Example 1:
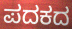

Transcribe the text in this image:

ಪದಕದ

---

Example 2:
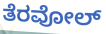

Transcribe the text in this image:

ತೆರವೋಲ್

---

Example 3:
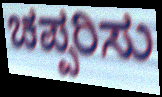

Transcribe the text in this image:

ಚಪ್ಪರಿಸು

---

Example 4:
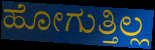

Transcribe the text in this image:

ಹೋಗುತ್ತಿಲ್ಲ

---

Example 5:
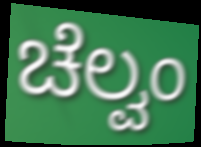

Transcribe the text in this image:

ಚೆಲ್ವಂ